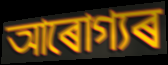
আৰোগ্যৰ